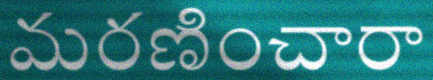
మరణించారా